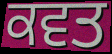
ਕਵਤ